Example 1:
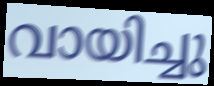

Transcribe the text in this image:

വായിച്ചു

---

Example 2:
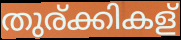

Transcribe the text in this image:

തുര്ക്കികള്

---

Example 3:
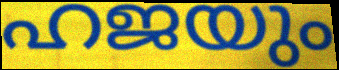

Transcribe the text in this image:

ഹജയും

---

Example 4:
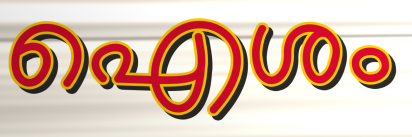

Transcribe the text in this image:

ഐശം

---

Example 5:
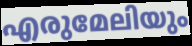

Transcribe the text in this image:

എരുമേലിയും